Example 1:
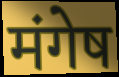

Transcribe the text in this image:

मंगेष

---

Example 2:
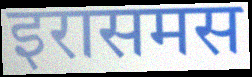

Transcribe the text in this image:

इरासमस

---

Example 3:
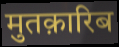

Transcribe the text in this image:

मुतक़ारिब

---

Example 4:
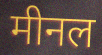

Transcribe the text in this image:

मीनल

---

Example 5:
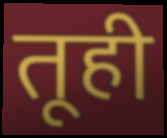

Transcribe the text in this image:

तूही